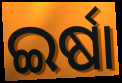
ଇର୍ଷା